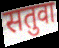
सतुवा